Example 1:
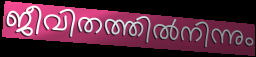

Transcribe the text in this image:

ജീവിതത്തിൽനിന്നും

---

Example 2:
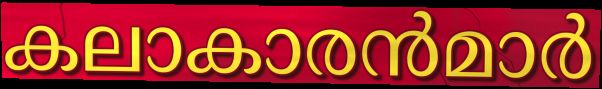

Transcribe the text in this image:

കലാകാരൻമാർ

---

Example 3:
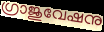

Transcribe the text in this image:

ഗ്രാജുവേഷനു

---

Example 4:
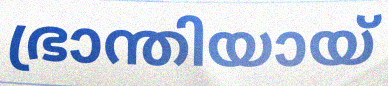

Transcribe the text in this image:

ഭ്രാന്തിയായ്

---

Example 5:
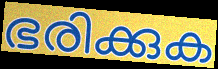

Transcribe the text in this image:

ഭരിക്കുക